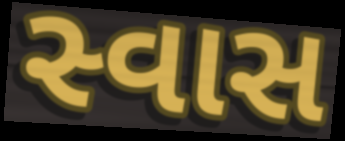
સ્વાસ